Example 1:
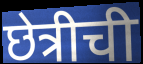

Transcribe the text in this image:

छेत्रीची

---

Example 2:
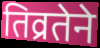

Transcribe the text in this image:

तिव्रतेने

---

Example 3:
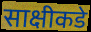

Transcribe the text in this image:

साक्षीकडे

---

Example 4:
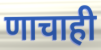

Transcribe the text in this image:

णाचाही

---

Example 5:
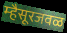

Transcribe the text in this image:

म्हैसूरजवळ